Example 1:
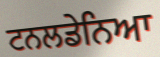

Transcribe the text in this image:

ਟਨਲਡੇਨਿਆ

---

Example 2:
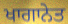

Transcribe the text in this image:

ਖਾਗਾਨੇਤ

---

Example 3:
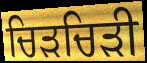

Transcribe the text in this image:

ਚਿੜਚਿੜੀ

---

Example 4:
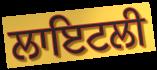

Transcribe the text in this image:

ਲਾਇਟਲੀ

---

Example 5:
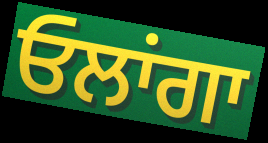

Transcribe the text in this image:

ਓਲਾਂਗਾ